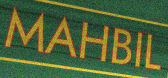
MAHBIL